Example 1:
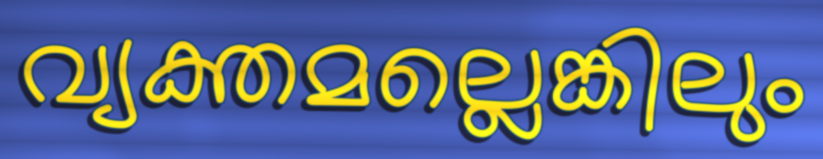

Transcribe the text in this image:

വ്യക്തമല്ലെങ്കിലും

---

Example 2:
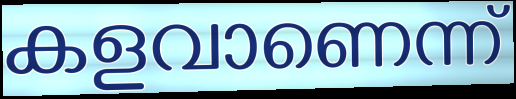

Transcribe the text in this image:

കളവാണെന്ന്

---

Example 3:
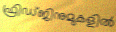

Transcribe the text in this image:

ഫ്രിഡ്ജിനുമുകളിൽ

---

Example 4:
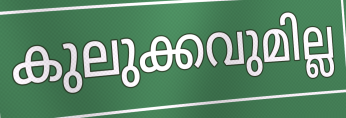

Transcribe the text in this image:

കുലുക്കവുമില്ല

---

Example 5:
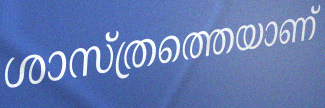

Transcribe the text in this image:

ശാസ്ത്രത്തെയാണ്